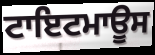
ਟਾਇਟਮਾਊਸ